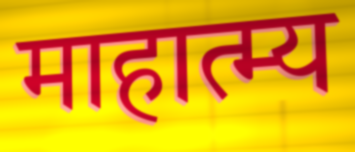
माहात्म्य